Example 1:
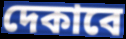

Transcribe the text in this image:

দেকাবে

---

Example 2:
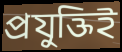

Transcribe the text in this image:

প্রযুক্তিই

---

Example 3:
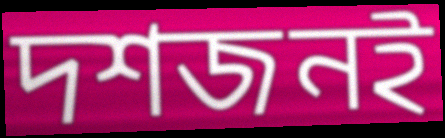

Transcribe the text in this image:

দশজনই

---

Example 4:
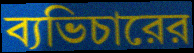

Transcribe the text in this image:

ব্যভিচারের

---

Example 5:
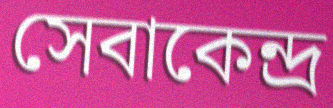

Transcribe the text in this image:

সেবাকেন্দ্র